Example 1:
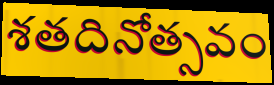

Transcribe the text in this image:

శతదినోత్సవం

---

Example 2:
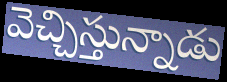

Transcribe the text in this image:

వెచ్చిస్తున్నాడు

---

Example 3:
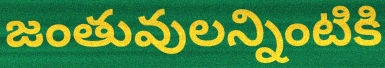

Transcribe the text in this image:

జంతువులన్నింటికి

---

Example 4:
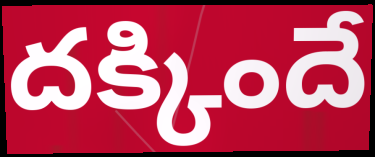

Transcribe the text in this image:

దక్కిందే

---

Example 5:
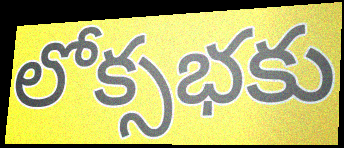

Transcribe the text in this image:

లోక్సభకు